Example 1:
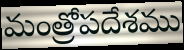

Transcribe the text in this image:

మంత్రోపదేశము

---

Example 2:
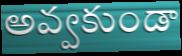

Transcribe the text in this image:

అవ్వకుండా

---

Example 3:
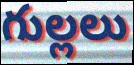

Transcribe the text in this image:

గుల్లలు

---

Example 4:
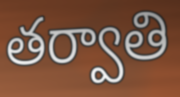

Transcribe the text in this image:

తర్వాతి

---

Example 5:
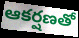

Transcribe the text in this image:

ఆకర్షణతో